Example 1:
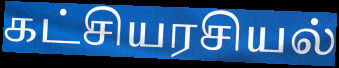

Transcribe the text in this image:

கட்சியரசியல்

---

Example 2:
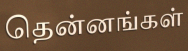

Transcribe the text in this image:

தென்னங்கள்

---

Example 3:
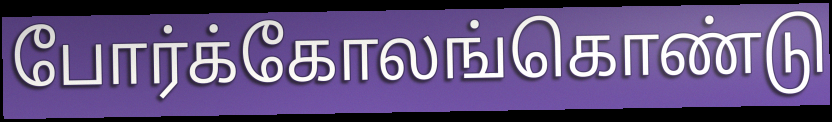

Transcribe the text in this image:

போர்க்கோலங்கொண்டு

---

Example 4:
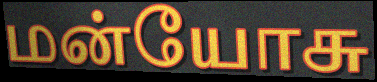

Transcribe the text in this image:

மன்யோசு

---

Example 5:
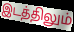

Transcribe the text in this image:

இடத்திலும்